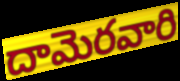
దామెరవారి